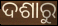
ଦଶାରୁ